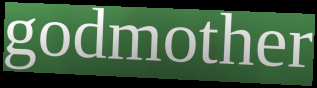
godmother